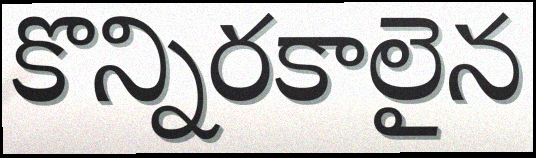
కొన్నిరకాలైన